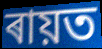
ৰায়ত